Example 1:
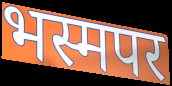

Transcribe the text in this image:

भस्मपर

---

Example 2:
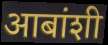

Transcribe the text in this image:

आबांशी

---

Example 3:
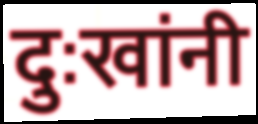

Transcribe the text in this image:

दुःखांनी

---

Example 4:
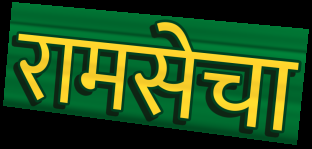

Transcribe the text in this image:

रामसेचा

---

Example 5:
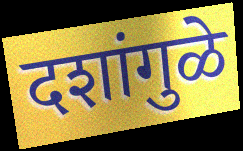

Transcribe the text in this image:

दशांगुळे